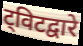
ट्विटद्वारे